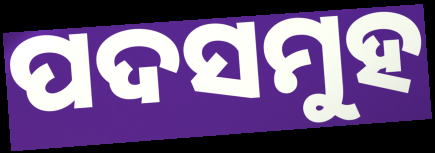
ପଦସମୁହ